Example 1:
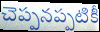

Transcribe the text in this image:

చెప్పనప్పటికీ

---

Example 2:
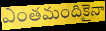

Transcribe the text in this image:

ఎంతమందికైనా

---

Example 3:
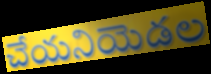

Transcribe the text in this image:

చేయనియెడల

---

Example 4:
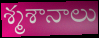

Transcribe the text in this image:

శ్మశానాలు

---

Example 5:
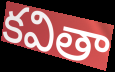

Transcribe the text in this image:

కవితా